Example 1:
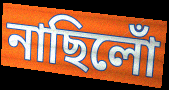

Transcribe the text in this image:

নাছিলোঁ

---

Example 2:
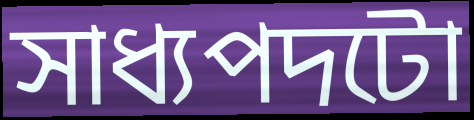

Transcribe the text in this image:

সাধ্যপদটো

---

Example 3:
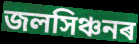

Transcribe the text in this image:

জলসিঞ্চনৰ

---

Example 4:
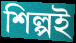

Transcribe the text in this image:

শিল্পই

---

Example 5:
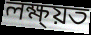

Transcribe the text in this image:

লক্ষ্য়ত